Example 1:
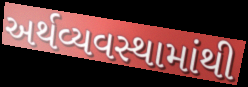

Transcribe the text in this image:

અર્થવ્યવસ્થામાંથી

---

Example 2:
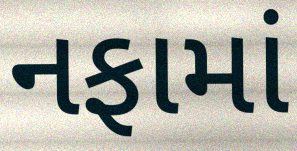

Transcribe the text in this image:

નફામાં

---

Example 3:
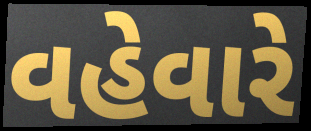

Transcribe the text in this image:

વહેવારે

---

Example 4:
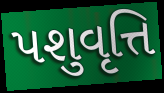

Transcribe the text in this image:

પશુવૃત્તિ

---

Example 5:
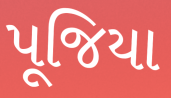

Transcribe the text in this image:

પૂજિયા